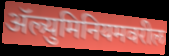
ॲल्युमिनियमवरील